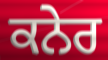
ਕਨੇਰ